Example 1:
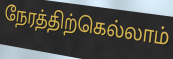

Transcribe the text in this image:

நேரத்திற்கெல்லாம்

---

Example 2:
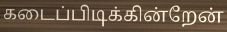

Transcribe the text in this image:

கடைப்பிடிக்கின்றேன்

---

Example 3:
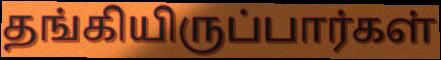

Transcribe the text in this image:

தங்கியிருப்பார்கள்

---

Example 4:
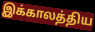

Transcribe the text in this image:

இக்காலத்திய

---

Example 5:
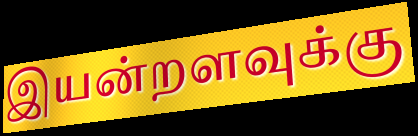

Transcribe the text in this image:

இயன்றளவுக்கு